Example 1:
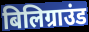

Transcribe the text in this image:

बिलिग्राउंड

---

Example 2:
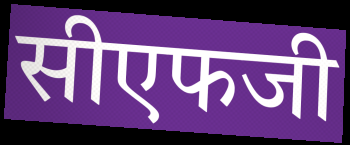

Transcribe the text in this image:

सीएफजी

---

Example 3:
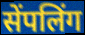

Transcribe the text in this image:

सेंपलिंग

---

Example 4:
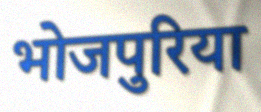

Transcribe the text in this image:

भोजपुरिया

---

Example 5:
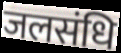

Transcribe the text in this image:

जलसंधि